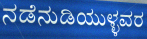
ನಡೆನುಡಿಯುಳ್ಳವರ